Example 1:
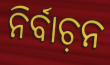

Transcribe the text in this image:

ନିର୍ବାଚ଼ନ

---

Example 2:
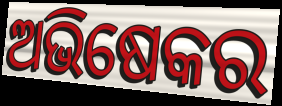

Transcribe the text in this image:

ଅଭିଷେକର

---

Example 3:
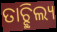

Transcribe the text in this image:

ତାଚ୍ଛିଲ୍ୟ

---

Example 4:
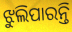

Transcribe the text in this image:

ଝୁଲିପାରନ୍ତି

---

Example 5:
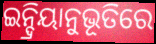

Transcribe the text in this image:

ଇନ୍ଦ୍ରିୟାନୁଭୂତିରେ